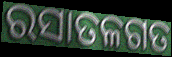
ରସାତଳଗତ